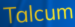
Talcum